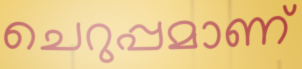
ചെറുപ്പമാണ്